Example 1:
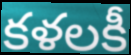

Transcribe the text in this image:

కళలకీ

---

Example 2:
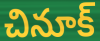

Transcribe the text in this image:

చినూక్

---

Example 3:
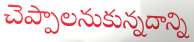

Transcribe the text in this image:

చెప్పాలనుకున్నదాన్ని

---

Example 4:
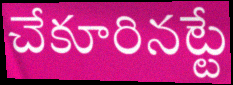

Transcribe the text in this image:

చేకూరినట్టే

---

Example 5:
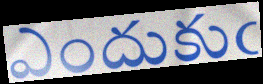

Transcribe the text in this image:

ఎందుకుఁ